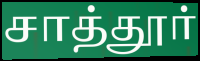
சாத்தூர்